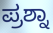
ಪ್ರಶ್ನಾ